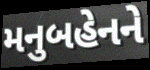
મનુબહેનને